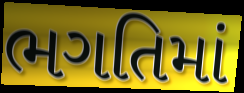
ભગતિમાં